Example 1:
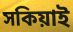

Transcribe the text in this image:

সকিয়াই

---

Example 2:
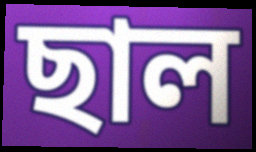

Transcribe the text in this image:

ছাল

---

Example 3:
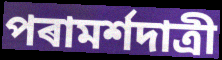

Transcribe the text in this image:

পৰামৰ্শদাত্ৰী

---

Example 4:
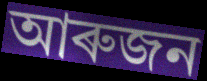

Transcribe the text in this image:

আৰুজন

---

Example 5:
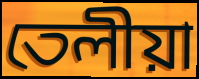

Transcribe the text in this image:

তেলীয়া